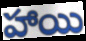
హాయి